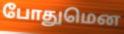
போதுமென